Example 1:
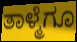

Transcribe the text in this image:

ತಾಳ್ಮೆಗೂ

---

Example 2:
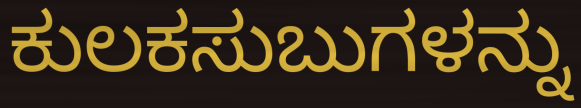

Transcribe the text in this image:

ಕುಲಕಸುಬುಗಳನ್ನು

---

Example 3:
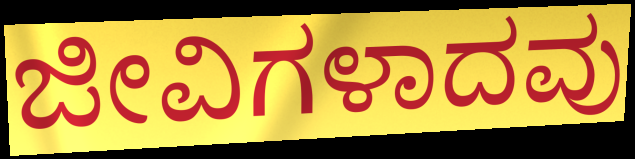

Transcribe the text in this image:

ಜೀವಿಗಳಾದವು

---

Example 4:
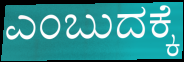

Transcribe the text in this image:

ಎಂಬುದಕ್ಕೆ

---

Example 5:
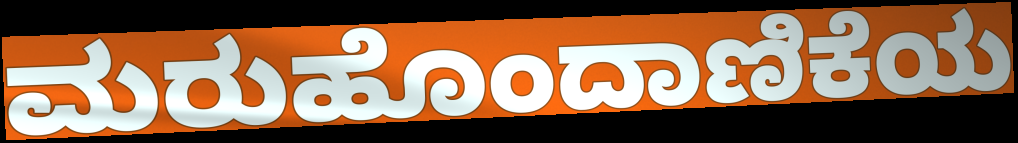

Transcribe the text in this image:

ಮರುಹೊಂದಾಣಿಕೆಯ